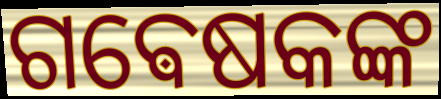
ଗଵେଷକଙ୍କ